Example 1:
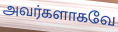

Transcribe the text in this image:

அவர்களாகவே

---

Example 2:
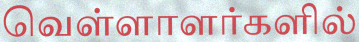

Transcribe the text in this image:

வெள்ளாளர்களில்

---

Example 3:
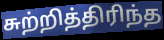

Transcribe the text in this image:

சுற்றித்திரிந்த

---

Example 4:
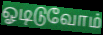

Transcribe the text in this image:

ஓடிடுவோம்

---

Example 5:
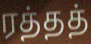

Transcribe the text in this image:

ரத்தத்